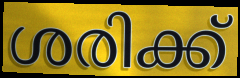
ശരിക്ക്